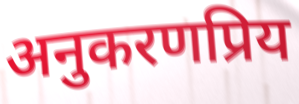
अनुकरणप्रिय